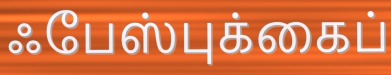
ஃபேஸ்புக்கைப்